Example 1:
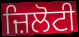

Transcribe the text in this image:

ਜ਼ਿਲੋਟੀ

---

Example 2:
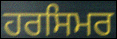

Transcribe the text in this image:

ਹਰਸਿਮਰ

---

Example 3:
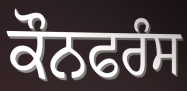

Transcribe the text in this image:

ਕੌਨਫਰੰਸ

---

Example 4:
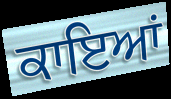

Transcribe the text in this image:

ਕਾਇਆਂ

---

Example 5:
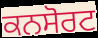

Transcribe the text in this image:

ਕਨਸੋਰਟ